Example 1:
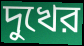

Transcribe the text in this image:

দুখের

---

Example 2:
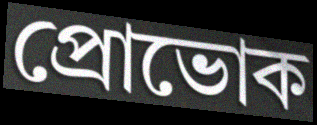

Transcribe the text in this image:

প্রোভোক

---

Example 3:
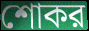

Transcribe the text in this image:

শোকর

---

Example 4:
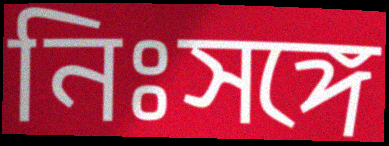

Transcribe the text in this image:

নিঃসঙ্গে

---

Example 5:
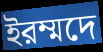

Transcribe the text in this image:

ইরম্মদে